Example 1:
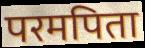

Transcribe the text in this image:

परमपिता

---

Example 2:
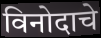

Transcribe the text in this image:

विनोदाचे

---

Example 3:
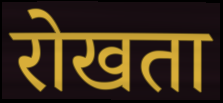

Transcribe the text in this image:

रोखता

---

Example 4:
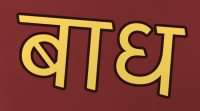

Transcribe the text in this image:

बाध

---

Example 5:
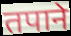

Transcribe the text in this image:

तपाने